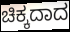
ಚಿಕ್ಕದಾದ